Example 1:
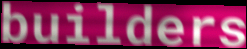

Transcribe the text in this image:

builders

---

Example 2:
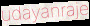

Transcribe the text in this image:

udayanraje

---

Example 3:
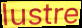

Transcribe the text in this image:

lustre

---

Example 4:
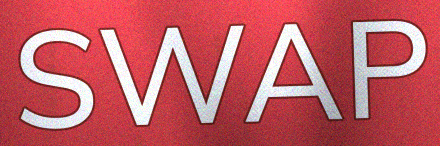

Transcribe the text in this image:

SWAP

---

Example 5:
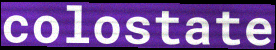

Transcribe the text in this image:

colostate